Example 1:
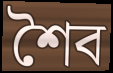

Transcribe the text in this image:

শৈব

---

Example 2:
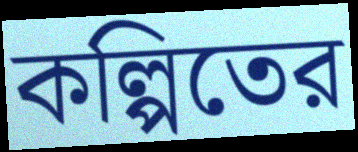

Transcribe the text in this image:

কল্পিতের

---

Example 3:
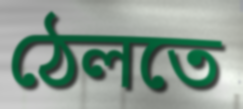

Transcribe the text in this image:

ঠেলতে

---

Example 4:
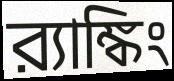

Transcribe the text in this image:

র‍্যাঙ্কিং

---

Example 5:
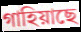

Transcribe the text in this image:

গাহিয়াছে